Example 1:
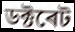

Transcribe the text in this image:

ডক্টৰেট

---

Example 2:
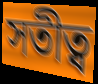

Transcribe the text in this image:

সতীত্ব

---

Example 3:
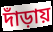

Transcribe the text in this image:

দাঁড়ায়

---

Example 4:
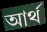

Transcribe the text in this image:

আৰ্থ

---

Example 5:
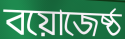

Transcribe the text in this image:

বয়োজেষ্ঠ